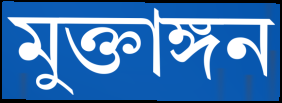
মুক্তাঙ্গন